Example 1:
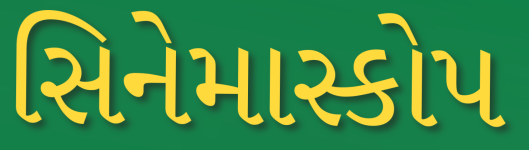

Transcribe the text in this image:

સિનેમાસ્કોપ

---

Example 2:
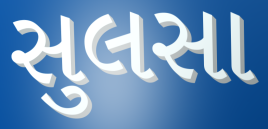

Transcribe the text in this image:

સુલસા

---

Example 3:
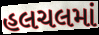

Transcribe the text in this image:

હલચલમાં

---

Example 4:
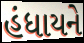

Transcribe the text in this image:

હંધાયને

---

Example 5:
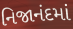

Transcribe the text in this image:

નિજાનંદમાં